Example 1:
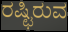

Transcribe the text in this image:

ರಷ್ಟಿರುವ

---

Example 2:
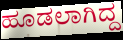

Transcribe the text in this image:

ಹೂಡಲಾಗಿದ್ದ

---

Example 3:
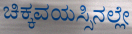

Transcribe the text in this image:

ಚಿಕ್ಕವಯಸ್ಸಿನಲ್ಲೇ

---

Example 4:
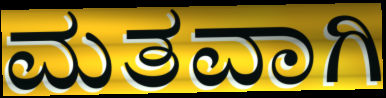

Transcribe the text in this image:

ಮತವಾಗಿ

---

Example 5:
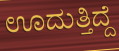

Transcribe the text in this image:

ಊದುತ್ತಿದ್ದೆ